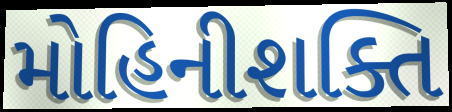
મોહિનીશક્તિ